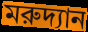
মরুদ্যান